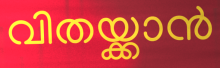
വിതയ്ക്കാൻ